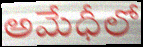
అమేధీలో